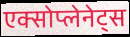
एक्सोप्लेनेट्स